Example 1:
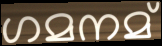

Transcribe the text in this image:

ഗമനമ്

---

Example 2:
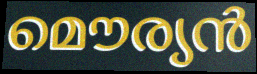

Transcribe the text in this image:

മൌര്യൻ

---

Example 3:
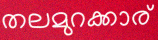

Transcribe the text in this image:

തലമുറക്കാര്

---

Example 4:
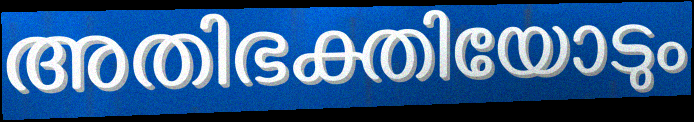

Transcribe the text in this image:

അതിഭക്തിയോടും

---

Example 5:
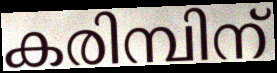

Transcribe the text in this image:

കരിമ്പിന്